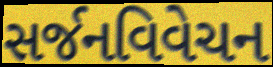
સર્જનવિવેચન